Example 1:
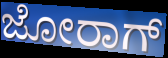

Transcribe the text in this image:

ಜೋರಾಗ್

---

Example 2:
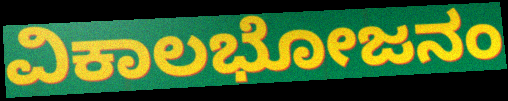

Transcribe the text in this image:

ವಿಕಾಲಭೋಜನಂ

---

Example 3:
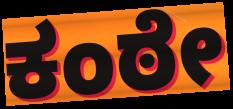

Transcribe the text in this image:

ಕಂಠೇ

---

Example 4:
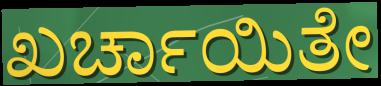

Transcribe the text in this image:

ಖರ್ಚಾಯಿತೇ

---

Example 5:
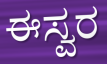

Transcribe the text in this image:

ಈಸ್ವರ